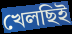
খেলছিই